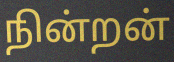
நின்றன்